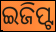
ଇଜିପ୍ଟ